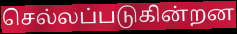
செல்லப்படுகின்றன